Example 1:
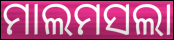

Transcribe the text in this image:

ମାଲମସଲା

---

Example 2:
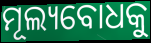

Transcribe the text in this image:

ମୂଲ୍ୟବୋଧକୁ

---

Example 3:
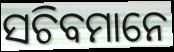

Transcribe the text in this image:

ସଚିବମାନେ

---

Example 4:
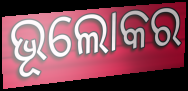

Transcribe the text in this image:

ଭୂଲୋକର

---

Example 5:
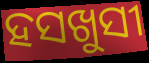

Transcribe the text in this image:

ହସଖୁସୀ